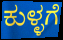
ಕುಳ್ಳಗೆ